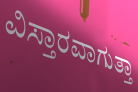
ವಿಸ್ತಾರವಾಗುತ್ತಾ